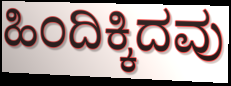
ಹಿಂದಿಕ್ಕಿದವು